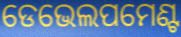
ଡେଭେଲପମେଣ୍ଟ